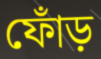
ফোঁড়